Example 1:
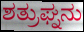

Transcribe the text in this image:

ಶತ್ರುಘ್ನನು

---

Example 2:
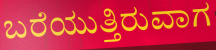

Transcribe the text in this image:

ಬರೆಯುತ್ತಿರುವಾಗ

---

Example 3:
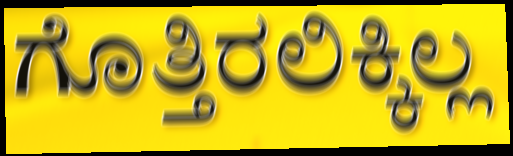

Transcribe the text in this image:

ಗೊತ್ತಿರಲಿಕ್ಕಿಲ್ಲ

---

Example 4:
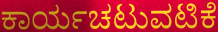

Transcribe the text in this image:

ಕಾರ್ಯಚಟುವಟಿಕೆ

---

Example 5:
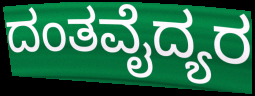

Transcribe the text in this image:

ದಂತವೈದ್ಯರ